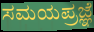
ಸಮಯಪ್ರಜ್ಞೆ